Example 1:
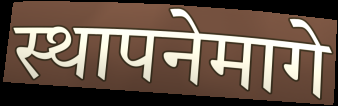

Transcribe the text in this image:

स्थापनेमागे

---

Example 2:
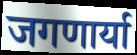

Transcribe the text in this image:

जगणार्या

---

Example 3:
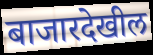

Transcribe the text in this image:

बाजारदेखील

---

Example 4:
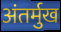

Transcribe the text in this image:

अंतर्मुख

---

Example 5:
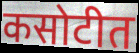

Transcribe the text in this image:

कसोटीत